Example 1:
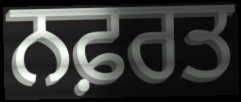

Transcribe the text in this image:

ਨਫ਼ਰਤ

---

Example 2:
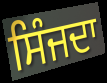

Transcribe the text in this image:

ਸਿੰਜਦਾ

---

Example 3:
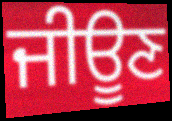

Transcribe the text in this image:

ਜੀਊਣ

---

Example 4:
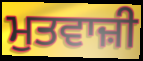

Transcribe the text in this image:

ਮੁਤਵਾਜ਼ੀ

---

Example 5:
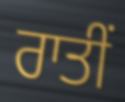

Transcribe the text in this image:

ਰਾਤੀਂ